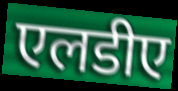
एलडीए